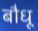
बौधू